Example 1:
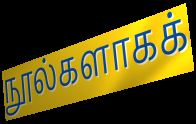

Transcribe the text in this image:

நூல்களாகக்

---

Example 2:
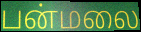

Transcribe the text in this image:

பன்மலை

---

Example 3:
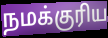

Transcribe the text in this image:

நமக்குரிய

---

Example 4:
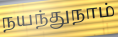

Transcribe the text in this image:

நயந்துநாம்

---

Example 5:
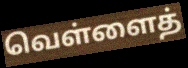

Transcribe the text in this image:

வெள்ளைத்